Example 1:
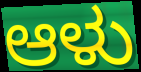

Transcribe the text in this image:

ಆಳು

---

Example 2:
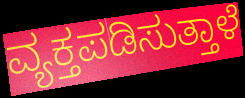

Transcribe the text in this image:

ವ್ಯಕ್ತಪಡಿಸುತ್ತಾಳೆ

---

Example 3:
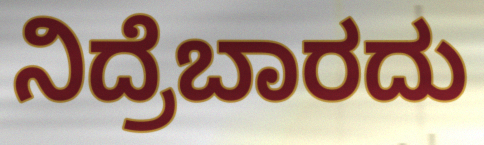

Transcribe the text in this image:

ನಿದ್ರೆಬಾರದು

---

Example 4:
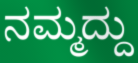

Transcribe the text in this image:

ನಮ್ಮದ್ದು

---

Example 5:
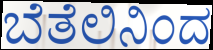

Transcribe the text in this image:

ಬೆತೆಲಿನಿಂದ